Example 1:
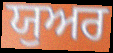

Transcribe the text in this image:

ਯੁਅਰ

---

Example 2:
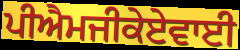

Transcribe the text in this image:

ਪੀਐਮਜੀਕੇਏਵਾਈ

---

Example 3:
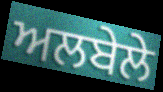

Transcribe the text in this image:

ਅਲਬੇਲੇ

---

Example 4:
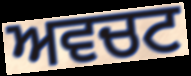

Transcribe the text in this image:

ਅਵਚਟ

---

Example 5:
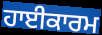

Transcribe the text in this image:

ਹਾਈਕਾਰਮ